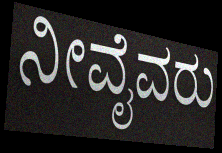
ನೀವೈವರು